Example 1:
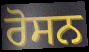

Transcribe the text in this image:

ਰੋਸਨ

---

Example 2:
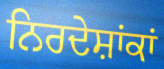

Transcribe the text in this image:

ਨਿਰਦੇਸ਼ਾਂਕਾਂ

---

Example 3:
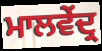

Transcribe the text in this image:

ਮਾਲਵੇਂਦ੍ਰ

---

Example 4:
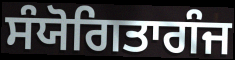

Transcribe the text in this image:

ਸੰਯੋਗਿਤਾਗੰਜ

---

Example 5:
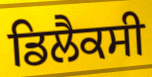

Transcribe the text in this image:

ਡਿਲੈਕਸੀ